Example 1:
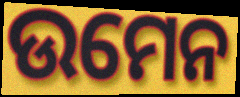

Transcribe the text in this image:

ଉମେନ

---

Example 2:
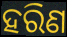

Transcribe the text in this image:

ହରିଣ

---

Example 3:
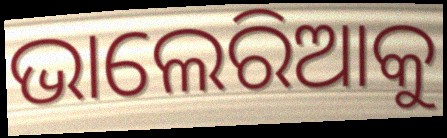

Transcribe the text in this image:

ଭାଲେରିଆକୁ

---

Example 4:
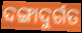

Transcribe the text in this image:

ଦଙ୍ଗାଦୁର୍ଗତ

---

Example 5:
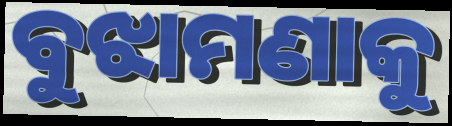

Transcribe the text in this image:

ବୁଝାମଣାକୁ